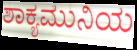
ಶಾಕ್ಯಮುನಿಯ